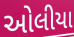
ઓલીયા